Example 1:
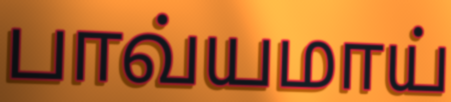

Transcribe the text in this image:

பாவ்யமாய்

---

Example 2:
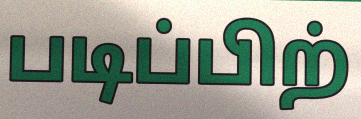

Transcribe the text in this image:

படிப்பிற்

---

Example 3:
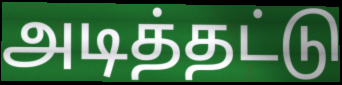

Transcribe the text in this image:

அடித்தட்டு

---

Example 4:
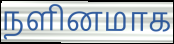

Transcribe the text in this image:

நளினமாக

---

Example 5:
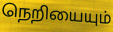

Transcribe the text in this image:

நெறியையும்